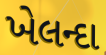
ખેલન્દા